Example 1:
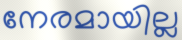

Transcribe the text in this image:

നേരമായില്ല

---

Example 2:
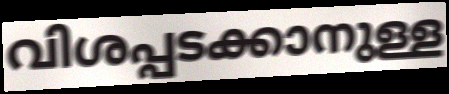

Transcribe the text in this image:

വിശപ്പടക്കാനുള്ള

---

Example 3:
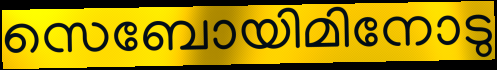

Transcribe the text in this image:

സെബോയിമിനോടു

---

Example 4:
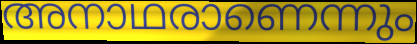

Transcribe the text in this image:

അനാഥരാണെന്നും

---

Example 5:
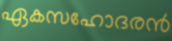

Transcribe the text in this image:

ഏകസഹോദരൻ